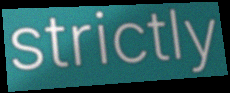
strictly